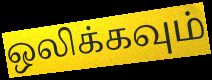
ஒலிக்கவும்